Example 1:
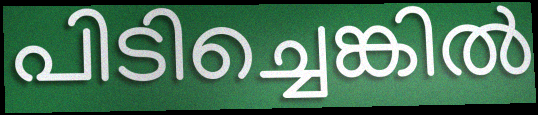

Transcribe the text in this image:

പിടിച്ചെങ്കിൽ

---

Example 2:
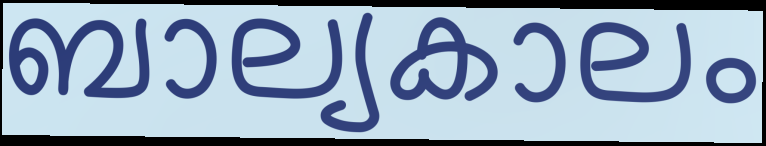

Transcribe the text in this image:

ബാല്യകാലം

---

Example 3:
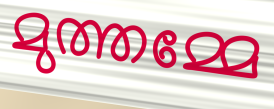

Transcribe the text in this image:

മുത്തമ്മേ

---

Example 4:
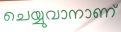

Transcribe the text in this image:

ചെയ്യുവാനാണ്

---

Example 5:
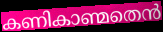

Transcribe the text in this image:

കണികാണ്മതെൻ